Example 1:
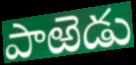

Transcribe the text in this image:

పాఱెడు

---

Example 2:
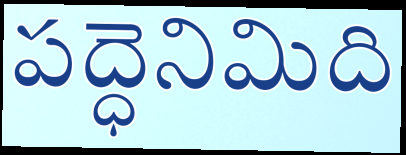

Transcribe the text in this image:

పద్ధెనిమిది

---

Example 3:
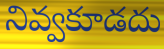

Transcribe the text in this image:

నివ్వకూడదు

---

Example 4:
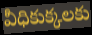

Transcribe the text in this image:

వీధికుక్కలకు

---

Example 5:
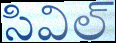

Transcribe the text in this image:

సివిల్